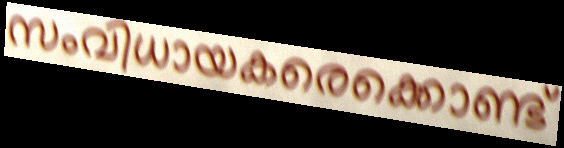
സംവിധായകരെക്കൊണ്ട്